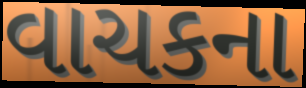
વાચકના